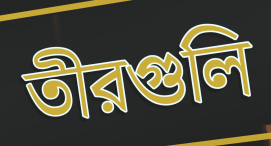
তীরগুলি